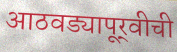
आठवड्यापूर्वीची